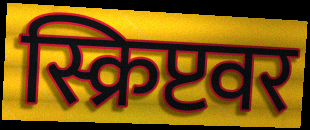
स्क्रिप्टवर